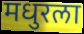
मधुरला